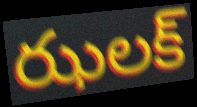
ఝలక్